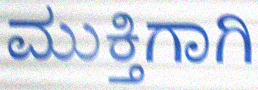
ಮುಕ್ತಿಗಾಗಿ